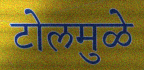
टोलमुळे